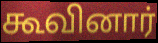
கூவினார்